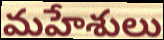
మహేశులు